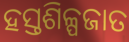
ହସ୍ତଶିଳ୍ପଜାତ